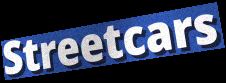
Streetcars